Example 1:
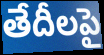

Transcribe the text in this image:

తేదీలపై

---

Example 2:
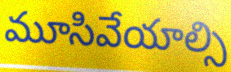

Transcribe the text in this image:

మూసివేయాల్సి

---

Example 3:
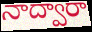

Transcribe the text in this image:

నాద్వారా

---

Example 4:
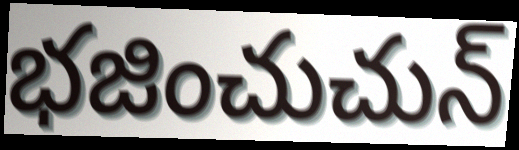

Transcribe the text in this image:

భజించుచున్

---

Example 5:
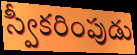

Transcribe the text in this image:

స్వీకరింపుడు